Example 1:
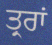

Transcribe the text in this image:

ਤ੍ਰਰਾਂ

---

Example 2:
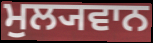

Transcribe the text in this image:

ਮੁਲ੍ਯਵਾਨ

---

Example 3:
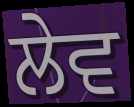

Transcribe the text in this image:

ਲੇਵ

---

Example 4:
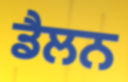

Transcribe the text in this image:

ਡੈਲਨ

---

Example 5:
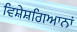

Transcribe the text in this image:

ਵਿਸ਼ੇਸ਼ਗਿਆਨਾਂ